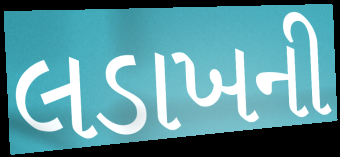
લડાખની